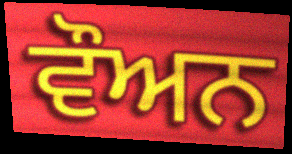
ਵੌਅਨ